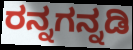
ರನ್ನಗನ್ನಡಿ